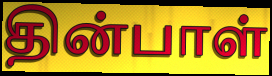
தின்பாள்